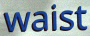
waist